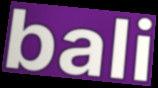
bali